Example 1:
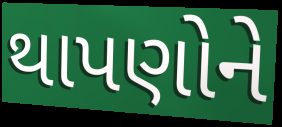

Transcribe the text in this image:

થાપણોને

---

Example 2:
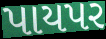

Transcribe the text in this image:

પાયપર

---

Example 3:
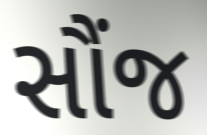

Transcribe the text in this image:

સૌંજ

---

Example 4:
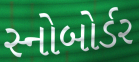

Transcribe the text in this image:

સ્નોબોર્ડર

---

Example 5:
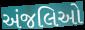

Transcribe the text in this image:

અંજલિઓ